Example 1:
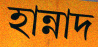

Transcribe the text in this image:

হান্নাদ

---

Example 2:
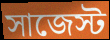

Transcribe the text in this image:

সাজেস্ট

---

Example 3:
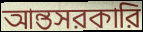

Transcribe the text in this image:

আন্তসরকারি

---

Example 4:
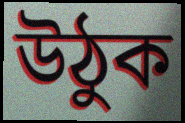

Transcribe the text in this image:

উঠুক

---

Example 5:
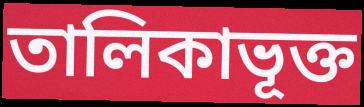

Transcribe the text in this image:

তালিকাভূক্ত